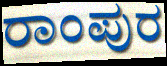
ರಾಂಪುರ